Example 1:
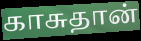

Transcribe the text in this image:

காசுதான்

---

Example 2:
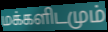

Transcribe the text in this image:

மக்களிடமும்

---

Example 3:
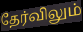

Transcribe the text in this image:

தேர்விலும்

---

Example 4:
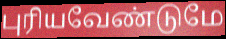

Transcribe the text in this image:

புரியவேண்டுமே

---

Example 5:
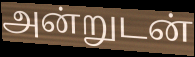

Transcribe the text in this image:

அன்றுடன்